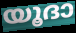
യൂദാ